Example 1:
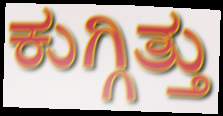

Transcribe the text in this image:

ಕುಗ್ಗಿತ್ತು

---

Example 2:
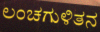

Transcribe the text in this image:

ಲಂಚಗುಳಿತನ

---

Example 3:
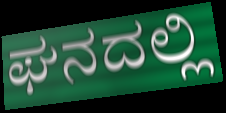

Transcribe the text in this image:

ಘನದಲ್ಲಿ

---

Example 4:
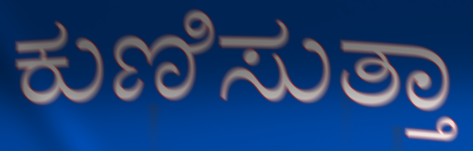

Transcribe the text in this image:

ಕುಣಿಸುತ್ತಾ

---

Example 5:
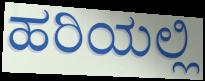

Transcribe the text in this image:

ಹರಿಯಲ್ಲಿ